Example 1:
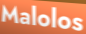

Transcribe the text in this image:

Malolos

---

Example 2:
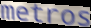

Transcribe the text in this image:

metros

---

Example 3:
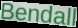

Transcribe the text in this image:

Bendall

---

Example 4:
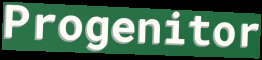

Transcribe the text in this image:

Progenitor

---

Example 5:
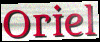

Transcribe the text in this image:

Oriel